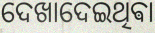
ଦେଖାଦେଇଥିଵା